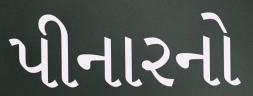
પીનારનો